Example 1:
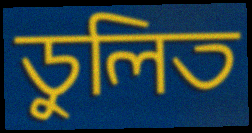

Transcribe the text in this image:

ডুলিত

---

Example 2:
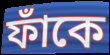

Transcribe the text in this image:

ফাঁকে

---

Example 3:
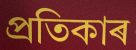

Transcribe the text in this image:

প্ৰতিকাৰ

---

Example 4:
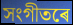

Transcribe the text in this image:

সংগীতৰে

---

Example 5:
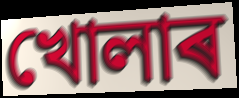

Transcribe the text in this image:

খোলাৰ